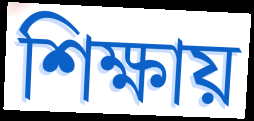
শিক্ষায়